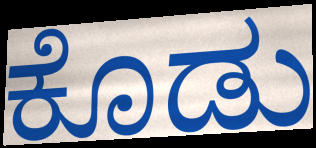
ಕೊಡು